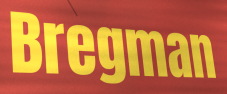
Bregman